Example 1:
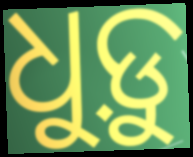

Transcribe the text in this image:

ଧୁଡ଼ୁ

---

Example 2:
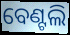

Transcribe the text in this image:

ବେଣ୍ଟଲି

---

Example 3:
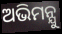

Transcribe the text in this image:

ଅଭିମନ୍ଯୁ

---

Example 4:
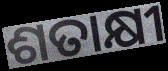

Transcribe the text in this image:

ଶତାକ୍ଷୀ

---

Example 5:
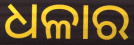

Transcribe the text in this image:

ଧଳାର